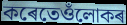
কৰেতেওঁলোকৰ